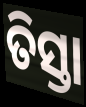
ତିସ୍ତା